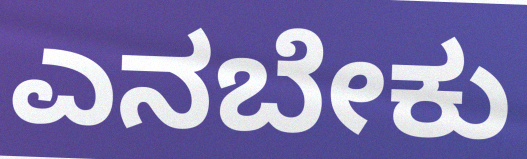
ಎನಬೇಕು